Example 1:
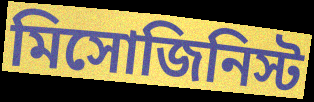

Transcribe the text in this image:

মিসোজিনিস্ট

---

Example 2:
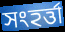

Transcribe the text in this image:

সংহর্ত্তা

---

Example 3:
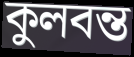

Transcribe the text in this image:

কুলবন্ত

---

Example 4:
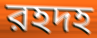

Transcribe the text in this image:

রহদহ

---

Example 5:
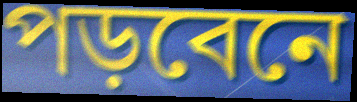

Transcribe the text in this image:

পড়বেনে